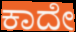
ಕಾದೇ